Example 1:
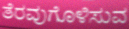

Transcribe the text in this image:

ತೆರವುಗೊಳಿಸುವ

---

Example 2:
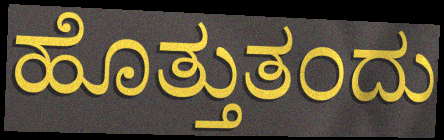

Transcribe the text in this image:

ಹೊತ್ತುತಂದು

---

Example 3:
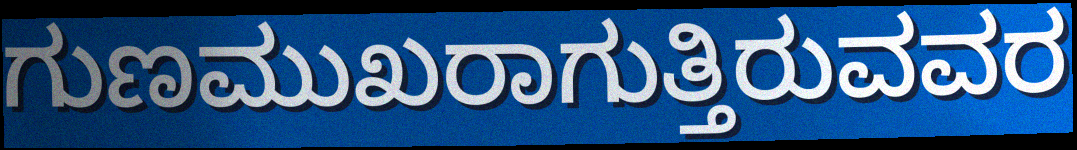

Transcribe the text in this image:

ಗುಣಮುಖರಾಗುತ್ತಿರುವವರ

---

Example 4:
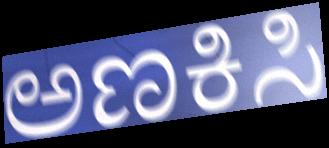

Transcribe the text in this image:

ಅಣಕಿಸಿ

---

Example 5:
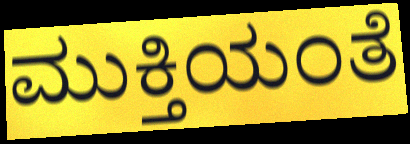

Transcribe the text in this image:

ಮುಕ್ತಿಯಂತೆ